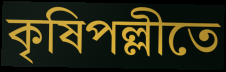
কৃষিপল্লীতে